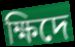
ক্ষিদে